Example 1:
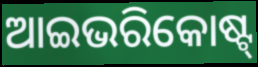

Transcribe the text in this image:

ଆଇଭରିକୋଷ୍ଟ୍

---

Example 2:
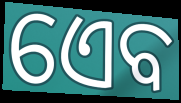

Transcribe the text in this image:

ଏେବ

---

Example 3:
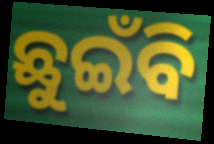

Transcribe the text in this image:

ଛୁଇଁବି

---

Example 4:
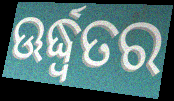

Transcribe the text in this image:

ଊର୍ଦ୍ଧ୍ଵତର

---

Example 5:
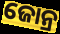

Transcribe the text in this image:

ଜୋନ୍ର